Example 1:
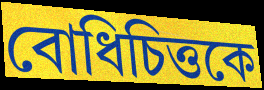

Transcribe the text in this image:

বোধিচিত্তকে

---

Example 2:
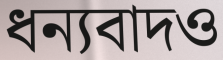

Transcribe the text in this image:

ধন্যবাদও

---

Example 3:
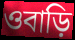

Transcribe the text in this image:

ওবাড়ি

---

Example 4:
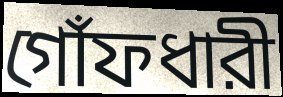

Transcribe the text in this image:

গোঁফধারী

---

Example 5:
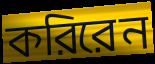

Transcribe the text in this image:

করিরেন